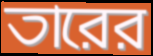
তারের